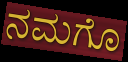
ನಮಗೊ